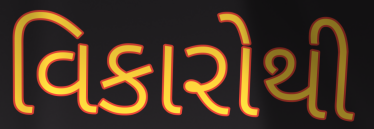
વિકારોથી